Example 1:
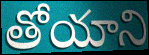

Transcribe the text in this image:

తోయాని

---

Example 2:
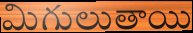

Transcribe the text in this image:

మిగులుతాయి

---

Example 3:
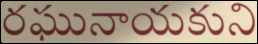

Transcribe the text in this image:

రఘునాయకుని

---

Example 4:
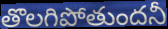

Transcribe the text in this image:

తొలగిపోతుందనీ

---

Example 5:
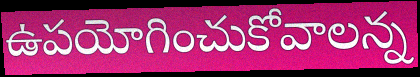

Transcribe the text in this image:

ఉపయోగించుకోవాలన్న